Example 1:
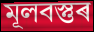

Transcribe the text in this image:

মূলবস্তুৰ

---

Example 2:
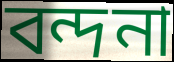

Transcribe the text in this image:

বন্দনা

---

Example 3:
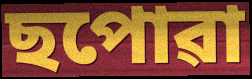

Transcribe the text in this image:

ছপোৱা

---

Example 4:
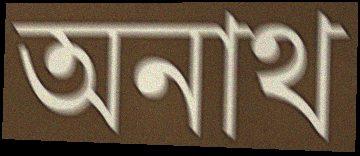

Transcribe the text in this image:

অনাথ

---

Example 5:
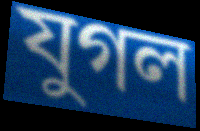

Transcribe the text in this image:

যুগল